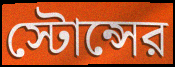
স্টোন্সের